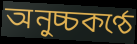
অনুচ্চকণ্ঠে